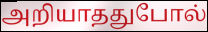
அறியாததுபோல்